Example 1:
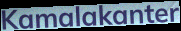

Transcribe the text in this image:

Kamalakanter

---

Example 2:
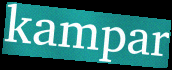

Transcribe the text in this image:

kampar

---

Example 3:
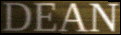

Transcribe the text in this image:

DEAN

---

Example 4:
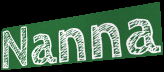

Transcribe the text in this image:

Nanna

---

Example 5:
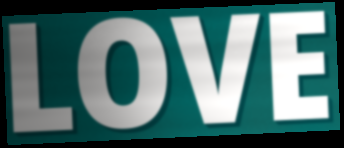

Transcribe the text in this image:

LOVE